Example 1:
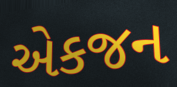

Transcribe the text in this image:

એકજન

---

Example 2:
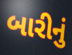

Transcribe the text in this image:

બારીનું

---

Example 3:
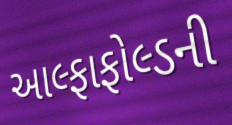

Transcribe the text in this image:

આલ્ફાફોલ્ડની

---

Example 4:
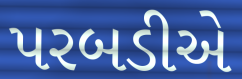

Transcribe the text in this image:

પરબડીએ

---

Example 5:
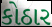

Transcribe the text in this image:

કોઠાર